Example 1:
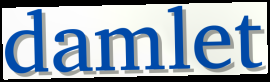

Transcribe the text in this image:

damlet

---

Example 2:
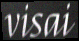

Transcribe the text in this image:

visai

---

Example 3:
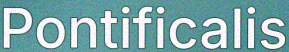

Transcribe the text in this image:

Pontificalis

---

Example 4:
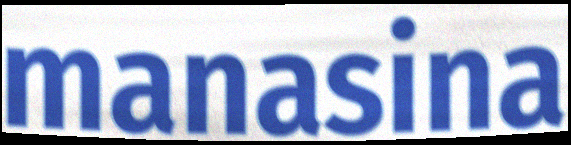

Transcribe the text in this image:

manasina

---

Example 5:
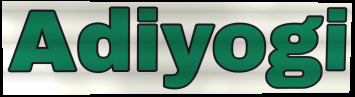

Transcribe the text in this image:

Adiyogi